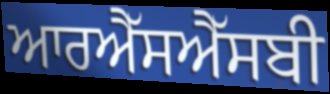
ਆਰਐੱਸਐੱਸਬੀ